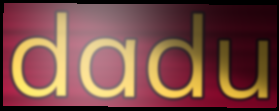
dadu